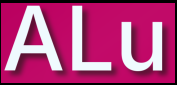
ALu